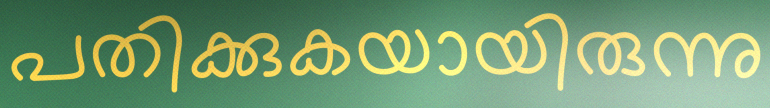
പതിക്കുകയായിരുന്നു